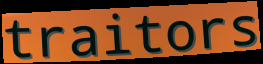
traitors